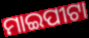
ମାଇପୀଟା